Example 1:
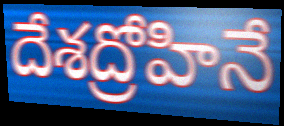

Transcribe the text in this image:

దేశద్రోహినే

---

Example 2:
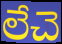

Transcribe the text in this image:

లేచె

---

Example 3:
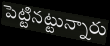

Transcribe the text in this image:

పెట్టినట్టున్నారు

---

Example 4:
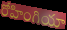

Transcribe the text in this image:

రోహింగియా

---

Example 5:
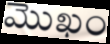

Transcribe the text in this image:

మొఖం